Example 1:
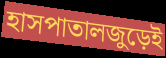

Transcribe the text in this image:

হাসপাতালজুড়েই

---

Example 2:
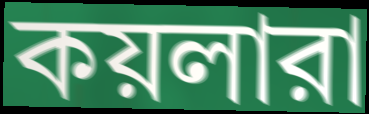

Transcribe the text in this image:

কয়লারা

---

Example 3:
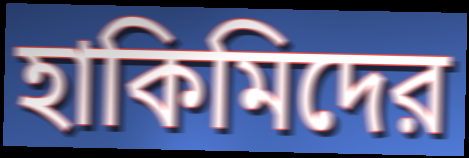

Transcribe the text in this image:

হাকিমিদের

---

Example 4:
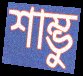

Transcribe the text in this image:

শাম্ভু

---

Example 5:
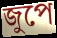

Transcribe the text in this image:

জুপে